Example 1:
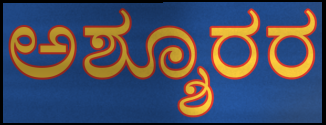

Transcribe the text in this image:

ಅಶ್ಶೂರರ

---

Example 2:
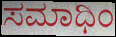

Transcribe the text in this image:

ಸಮಾಧಿಂ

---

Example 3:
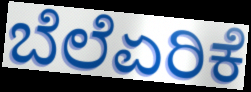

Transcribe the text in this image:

ಬೆಲೆಏರಿಕೆ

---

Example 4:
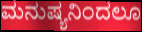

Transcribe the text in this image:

ಮನುಷ್ಯನಿಂದಲೂ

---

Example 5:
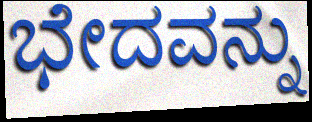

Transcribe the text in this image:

ಭೇದವನ್ನು